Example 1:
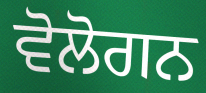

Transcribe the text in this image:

ਵੋਲੋਗਨ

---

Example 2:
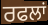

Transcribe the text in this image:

ਰਫਲਾਂ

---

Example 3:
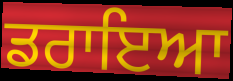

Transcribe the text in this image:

ਡਰਾਇਆ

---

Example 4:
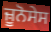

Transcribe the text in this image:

ਜ਼ੂਨੋਸੇਸ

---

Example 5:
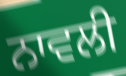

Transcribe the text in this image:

ਨਾਵਲੀ